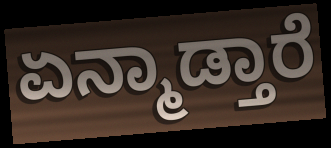
ಏನ್ಮಾಡ್ತಾರೆ